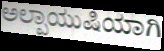
ಅಲ್ಪಾಯುಷಿಯಾಗಿ